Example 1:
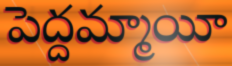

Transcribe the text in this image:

పెద్దమ్మాయీ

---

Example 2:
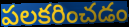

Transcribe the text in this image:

పలకరించడం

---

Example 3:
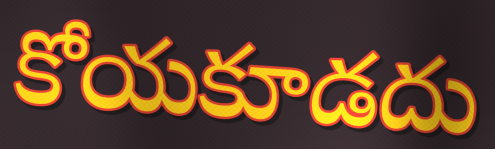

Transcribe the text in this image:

కోయకూడదు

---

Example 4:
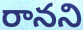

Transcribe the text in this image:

రానని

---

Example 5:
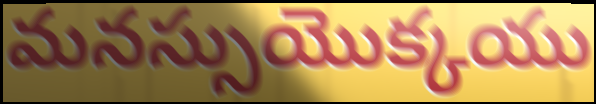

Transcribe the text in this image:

మనస్సుయొక్కయు